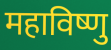
महाविष्णु